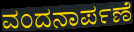
ವಂದನಾರ್ಪಣೆ